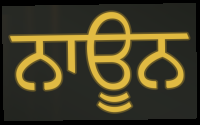
ਨਾਊਨ